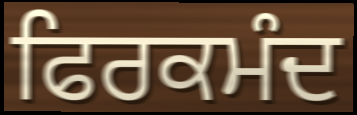
ਫਿਰਕਮੰਦ